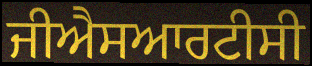
ਜੀਐਸਆਰਟੀਸੀ